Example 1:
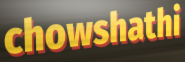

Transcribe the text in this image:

chowshathi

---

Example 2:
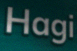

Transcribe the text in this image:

Hagi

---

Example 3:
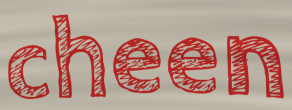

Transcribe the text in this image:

cheen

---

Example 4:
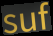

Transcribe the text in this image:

suf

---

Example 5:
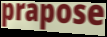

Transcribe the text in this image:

prapose